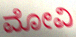
ಮೋವಿ